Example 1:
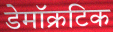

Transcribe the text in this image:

डेमॉक्रटिक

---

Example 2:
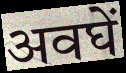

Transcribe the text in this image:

अवघें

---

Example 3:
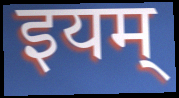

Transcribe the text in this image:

इयम्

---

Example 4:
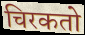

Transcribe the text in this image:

चिरकतो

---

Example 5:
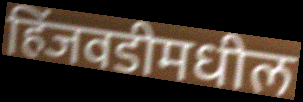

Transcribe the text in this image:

हिंजवडीमधील